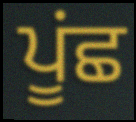
ਪੂਂਛ